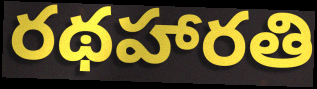
రథహారతి